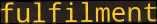
fulfilment